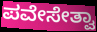
ಪವೇಸೇತ್ವಾ